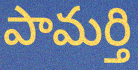
పామర్తి